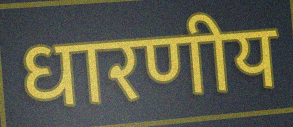
धारणीय